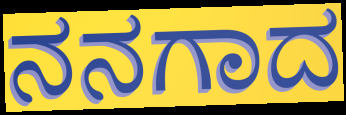
ನನಗಾದ